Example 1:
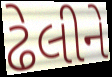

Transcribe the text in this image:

ઢેલીને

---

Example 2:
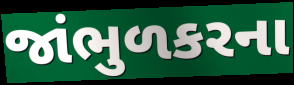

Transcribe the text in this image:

જાંભુળકરના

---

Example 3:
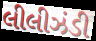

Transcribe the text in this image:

લીલીઝંડી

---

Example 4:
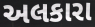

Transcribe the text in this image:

અલકારા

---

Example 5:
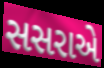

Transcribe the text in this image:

સસરાએ